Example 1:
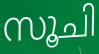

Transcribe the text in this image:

സൂചി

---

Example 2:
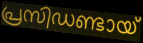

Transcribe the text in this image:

പ്രസിഡണ്ടായ്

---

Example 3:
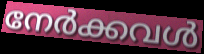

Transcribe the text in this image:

നേർക്കവൾ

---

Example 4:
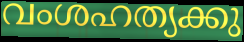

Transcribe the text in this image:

വംശഹത്യക്കു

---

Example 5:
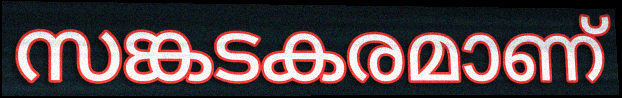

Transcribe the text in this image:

സങ്കടകരമാണ്